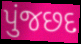
પુંજછદ